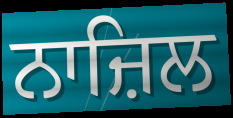
ਨਾਜ਼ਿਲ